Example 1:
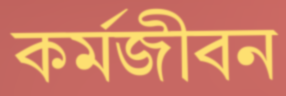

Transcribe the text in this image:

কর্মজীবন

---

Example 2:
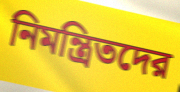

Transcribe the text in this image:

নিমন্ত্রিতদের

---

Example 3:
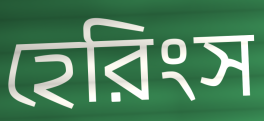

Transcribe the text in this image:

হেরিংস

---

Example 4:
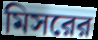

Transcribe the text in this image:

মিসরের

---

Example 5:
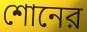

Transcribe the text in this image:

শোনের